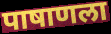
पाषाणला